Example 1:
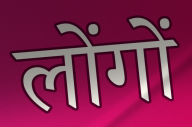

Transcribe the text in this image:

लोंगों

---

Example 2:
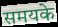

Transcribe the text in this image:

समयके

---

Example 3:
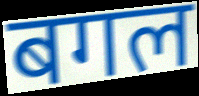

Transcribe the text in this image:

बगल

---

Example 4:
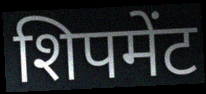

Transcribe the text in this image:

शिपमेंट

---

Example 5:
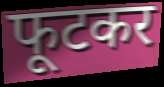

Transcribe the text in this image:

फूटकर